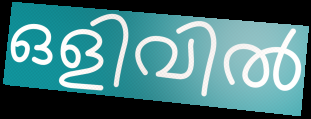
ഒളിവിൽ